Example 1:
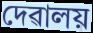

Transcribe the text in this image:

দেৱালয়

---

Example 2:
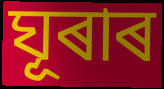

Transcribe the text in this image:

ঘূৰাৰ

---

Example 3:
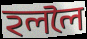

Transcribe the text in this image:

হললৈ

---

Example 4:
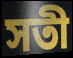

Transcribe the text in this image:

সতী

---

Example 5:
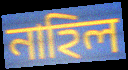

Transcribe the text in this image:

নাহিল